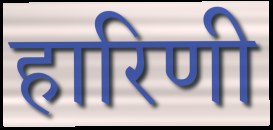
हारिणी